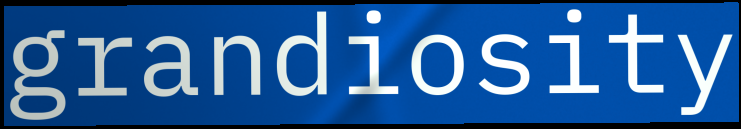
grandiosity